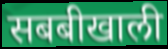
सबबीखाली